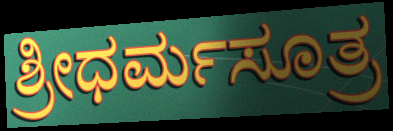
ಶ್ರೀಧರ್ಮಸೂತ್ರ